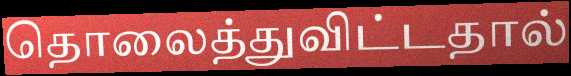
தொலைத்துவிட்டதால்